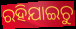
ରହିଯାଇଚୁ